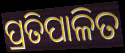
ପ୍ରତିପାଳିତ